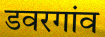
डवरगांव